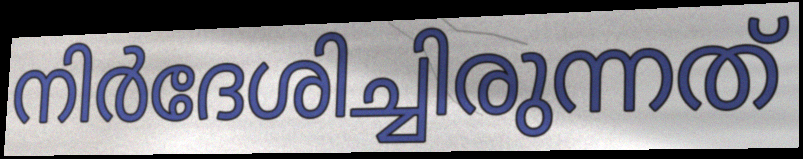
നിർദേശിച്ചിരുന്നത്